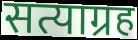
सत्याग्रह